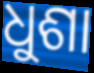
ଧୁଶା